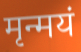
मृन्मयं